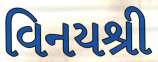
વિનયશ્રી